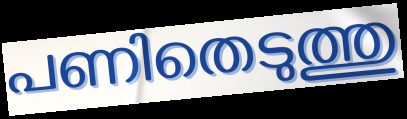
പണിതെടുത്തു